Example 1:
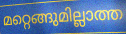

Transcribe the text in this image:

മറ്റെങ്ങുമില്ലാത്ത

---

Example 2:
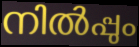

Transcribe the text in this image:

നിൽപ്പും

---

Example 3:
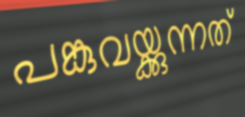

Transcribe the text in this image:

പങ്കുവയ്ക്കുന്നത്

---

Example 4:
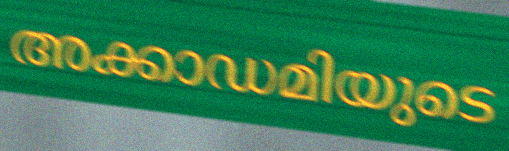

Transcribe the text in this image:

അക്കാഡമിയുടെ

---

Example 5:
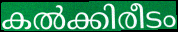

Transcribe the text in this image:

കൽക്കിരീടം